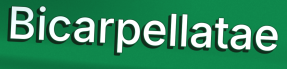
Bicarpellatae